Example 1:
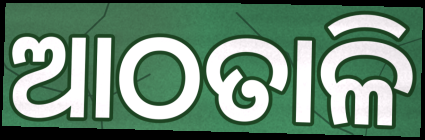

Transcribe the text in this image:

ଆଠତାଳି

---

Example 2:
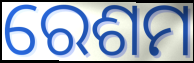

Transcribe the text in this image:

ରେଶମ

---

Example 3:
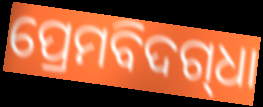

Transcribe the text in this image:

ପ୍ରେମବିଦଗ୍‍ଧା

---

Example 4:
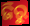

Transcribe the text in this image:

ଜିରୁ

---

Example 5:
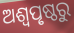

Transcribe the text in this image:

ଅଶ୍ଵପୃଷ୍ଠରୁ